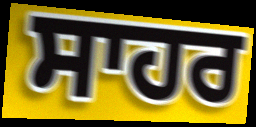
ਸਾਹਰ